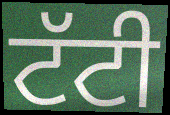
ਟੱਟੀ